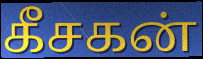
கீசகன்